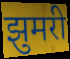
झुमरी